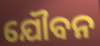
ଯୌବନ